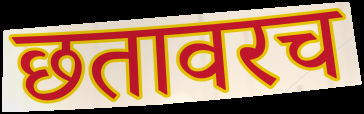
छतावरच